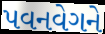
પવનવેગને